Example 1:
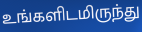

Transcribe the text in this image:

உங்களிடமிருந்து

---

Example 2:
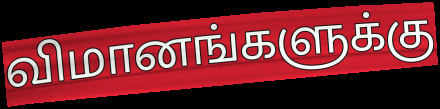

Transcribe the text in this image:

விமானங்களுக்கு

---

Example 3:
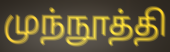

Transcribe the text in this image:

முந்நூத்தி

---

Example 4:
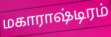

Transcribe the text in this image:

மகாராஷ்டிரம்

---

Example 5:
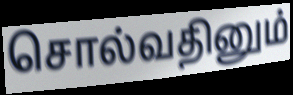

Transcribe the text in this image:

சொல்வதினும்